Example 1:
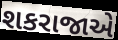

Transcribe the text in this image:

શકરાજાએ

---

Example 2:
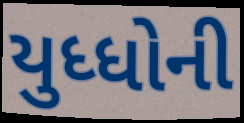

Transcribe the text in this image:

યુધ્ધોની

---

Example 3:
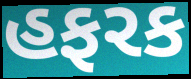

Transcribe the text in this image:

હફરક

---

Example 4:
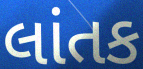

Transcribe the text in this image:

લાંતક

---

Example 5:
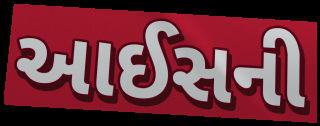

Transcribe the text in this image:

આઈસની